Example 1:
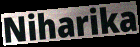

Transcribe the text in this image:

Niharika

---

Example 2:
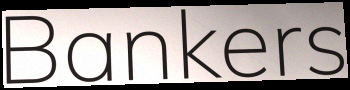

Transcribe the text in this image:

Bankers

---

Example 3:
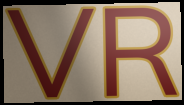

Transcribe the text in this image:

VR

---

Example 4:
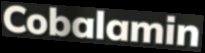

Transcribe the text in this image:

Cobalamin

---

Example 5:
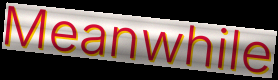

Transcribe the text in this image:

Meanwhile